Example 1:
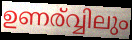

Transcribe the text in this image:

ഉണര്വ്വിലും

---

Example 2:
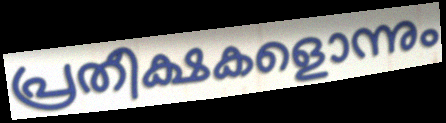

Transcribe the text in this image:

പ്രതീക്ഷകളൊന്നും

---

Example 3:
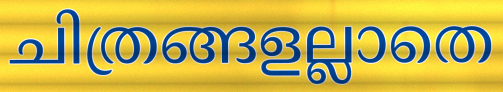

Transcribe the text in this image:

ചിത്രങ്ങളല്ലാതെ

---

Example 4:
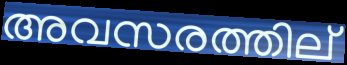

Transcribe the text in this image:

അവസരത്തില്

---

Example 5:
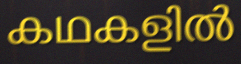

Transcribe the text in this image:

കഥകളിൽ